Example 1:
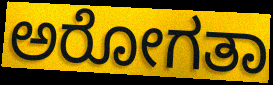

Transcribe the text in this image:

ಅರೋಗತಾ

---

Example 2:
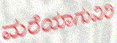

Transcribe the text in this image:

ಮರೆಯಾಗುವಿರಿ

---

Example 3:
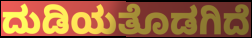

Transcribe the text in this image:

ದುಡಿಯತೊಡಗಿದೆ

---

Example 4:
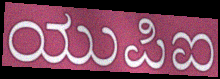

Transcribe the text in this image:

ಯುಪಿಐ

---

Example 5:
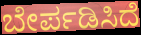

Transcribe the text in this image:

ಬೇರ್ಪಡಿಸಿದೆ